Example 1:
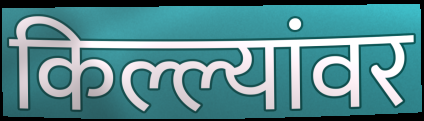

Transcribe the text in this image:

किल्ल्यांवर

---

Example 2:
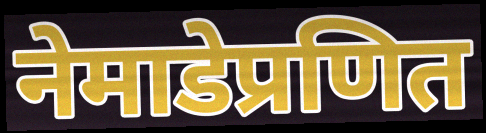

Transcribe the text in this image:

नेमाडेप्रणित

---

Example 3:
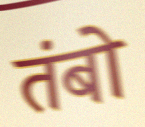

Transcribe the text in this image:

तंबो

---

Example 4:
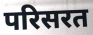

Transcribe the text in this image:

परिसरत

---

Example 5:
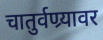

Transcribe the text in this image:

चातुर्वण्र्यावर